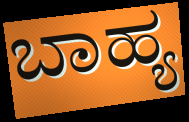
ಬಾಹ್ಯ